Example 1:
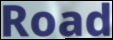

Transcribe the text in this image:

Road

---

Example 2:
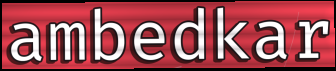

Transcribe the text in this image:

ambedkar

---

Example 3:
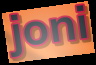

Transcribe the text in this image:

joni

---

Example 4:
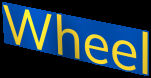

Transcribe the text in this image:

Wheel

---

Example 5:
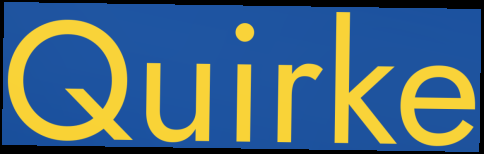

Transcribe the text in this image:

Quirke